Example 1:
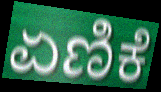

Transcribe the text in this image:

ಏಣಿಕೆ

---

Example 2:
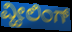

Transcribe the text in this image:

ವ್ಹೀಲಿಂಗ್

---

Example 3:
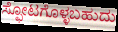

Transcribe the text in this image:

ಸ್ಫೋಟಗೊಳ್ಳಬಹುದು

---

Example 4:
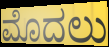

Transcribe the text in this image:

ಮೊದಲು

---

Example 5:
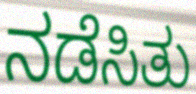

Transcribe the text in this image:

ನಡೆಸಿತು